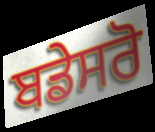
ਬਡੇਸਰੋ